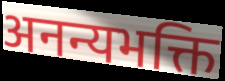
अनन्यभक्ति